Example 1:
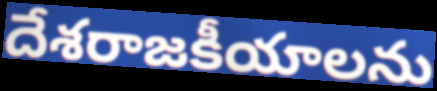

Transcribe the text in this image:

దేశరాజకీయాలను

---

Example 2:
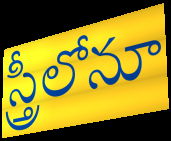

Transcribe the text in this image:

స్త్రీలోనూ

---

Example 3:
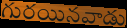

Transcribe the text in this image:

గురయినవాడు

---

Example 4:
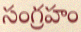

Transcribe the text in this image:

సంగ్రహం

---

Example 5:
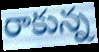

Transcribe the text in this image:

రాకున్న